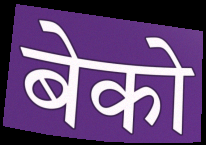
बेको